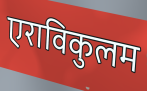
एराविकुलम